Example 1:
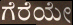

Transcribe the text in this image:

ಗೆರೆಯೇ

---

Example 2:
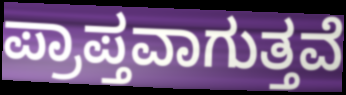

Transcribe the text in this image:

ಪ್ರಾಪ್ತವಾಗುತ್ತವೆ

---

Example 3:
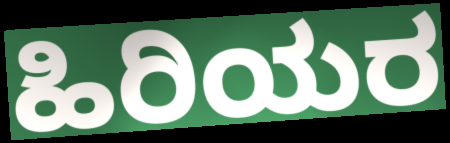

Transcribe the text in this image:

ಹಿರಿಯರ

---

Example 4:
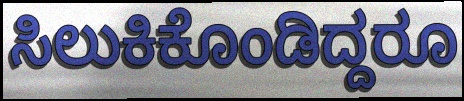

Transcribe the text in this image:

ಸಿಲುಕಿಕೊಂಡಿದ್ದರೂ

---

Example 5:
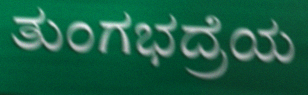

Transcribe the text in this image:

ತುಂಗಭದ್ರೆಯ